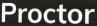
Proctor